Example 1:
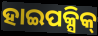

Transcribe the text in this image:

ହାଇପକ୍ସିକ୍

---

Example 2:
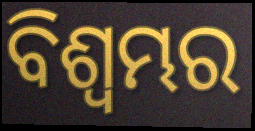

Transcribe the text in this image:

ବିଶ୍ବମ୍ଭର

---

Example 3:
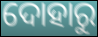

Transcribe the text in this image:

ଦୋହାରୁ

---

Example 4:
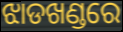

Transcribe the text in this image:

ଝାଡଖଣ୍ଡରେ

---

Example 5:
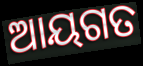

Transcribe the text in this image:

ଆୟଗତ